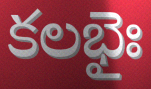
కలభైః